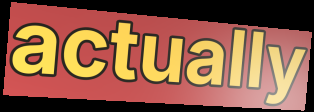
actually